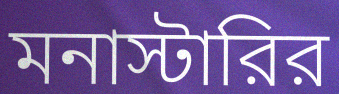
মনাস্টারির